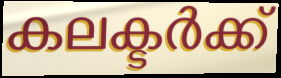
കലക്ടർക്ക്